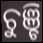
ଚୁଞ୍ଚି